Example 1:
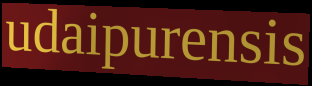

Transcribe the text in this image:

udaipurensis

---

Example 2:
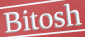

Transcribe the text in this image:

Bitosh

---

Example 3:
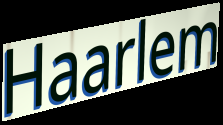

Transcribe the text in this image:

Haarlem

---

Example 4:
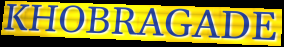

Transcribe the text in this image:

KHOBRAGADE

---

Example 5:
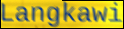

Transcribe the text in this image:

Langkawi